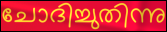
ചോദിച്ചുതിന്നു